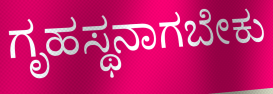
ಗೃಹಸ್ಥನಾಗಬೇಕು